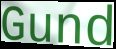
Gund